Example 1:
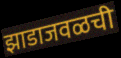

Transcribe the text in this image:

झाडाजवळची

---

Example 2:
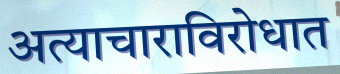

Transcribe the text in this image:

अत्याचाराविरोधात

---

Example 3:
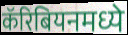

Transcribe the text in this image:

कॅरिबियनमध्ये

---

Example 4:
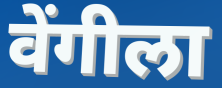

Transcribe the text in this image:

वेंगीला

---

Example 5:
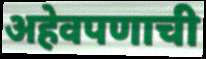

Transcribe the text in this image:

अहेवपणाची